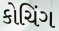
કોચિંગ